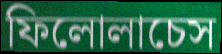
ফিলোলাচেস